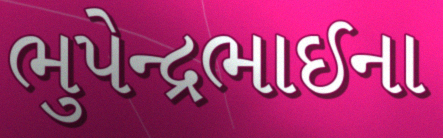
ભુપેન્દ્રભાઈના